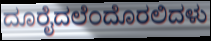
ದೂರೈದಲೆಂದೊರಲಿದಳು